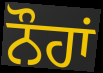
ਨੌਹਾਂ